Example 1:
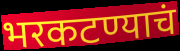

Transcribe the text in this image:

भरकटण्याचं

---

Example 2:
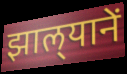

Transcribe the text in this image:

झाल्यानें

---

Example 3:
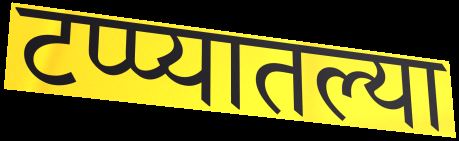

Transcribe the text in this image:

टप्प्यातल्या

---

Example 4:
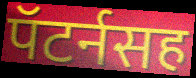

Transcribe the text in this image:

पॅटर्नसह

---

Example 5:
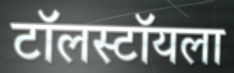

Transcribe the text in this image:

टॉलस्टॉयला